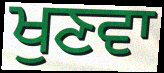
ਖੁਣਵਾ